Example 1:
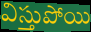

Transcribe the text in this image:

విస్తుపోయి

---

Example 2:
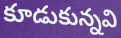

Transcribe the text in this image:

కూడుకున్నవి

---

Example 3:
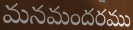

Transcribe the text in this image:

మనమందరము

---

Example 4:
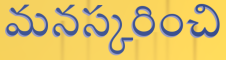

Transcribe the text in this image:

మనస్కరించి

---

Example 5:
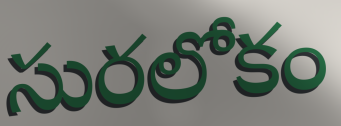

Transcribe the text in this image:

సురలోకం